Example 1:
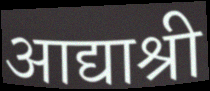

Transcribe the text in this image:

आद्याश्री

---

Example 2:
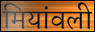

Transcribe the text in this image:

मियांवली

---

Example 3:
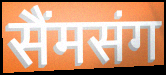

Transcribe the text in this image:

सैंमसंग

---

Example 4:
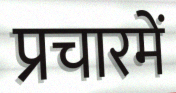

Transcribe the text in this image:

प्रचारमें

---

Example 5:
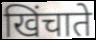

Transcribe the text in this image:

खिंचाते